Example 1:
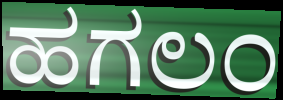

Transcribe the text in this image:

ಹಗಲಂ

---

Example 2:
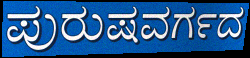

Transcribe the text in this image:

ಪುರುಷವರ್ಗದ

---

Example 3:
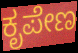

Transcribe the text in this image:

ಕೃಪೇಣ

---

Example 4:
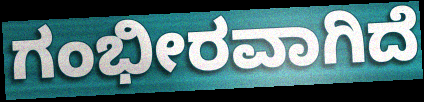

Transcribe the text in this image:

ಗಂಭೀರವಾಗಿದೆ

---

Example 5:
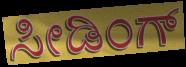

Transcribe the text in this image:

ಸೀಡಿಂಗ್